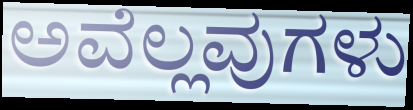
ಅವೆಲ್ಲವುಗಳು